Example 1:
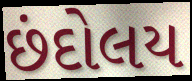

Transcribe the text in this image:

છંદોલય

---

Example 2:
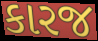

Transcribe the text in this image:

કારજ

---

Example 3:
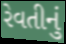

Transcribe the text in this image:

રેવતીનું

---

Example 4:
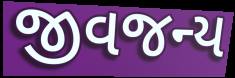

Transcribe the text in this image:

જીવજન્ય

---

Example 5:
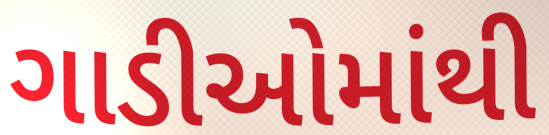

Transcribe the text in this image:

ગાડીઓમાંથી